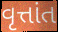
વૃત્તાંત